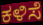
ಕಳಿಸೆ